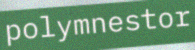
polymnestor